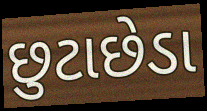
છુટાછેડા